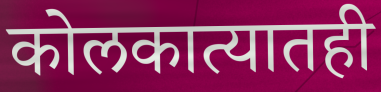
कोलकात्यातही